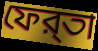
ফের্‌তা